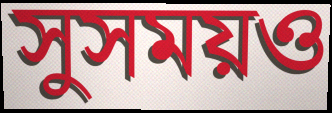
সুসময়ও